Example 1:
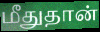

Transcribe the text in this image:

மீதுதான்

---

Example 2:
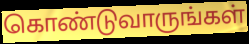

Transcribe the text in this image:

கொண்டுவாருங்கள்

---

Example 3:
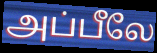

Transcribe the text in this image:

அப்பீலே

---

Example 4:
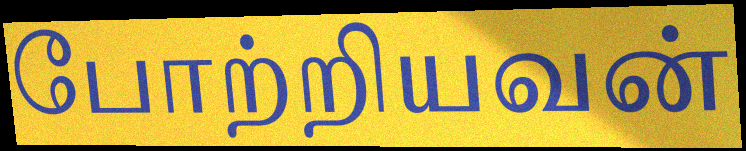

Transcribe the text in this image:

போற்றியவன்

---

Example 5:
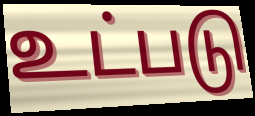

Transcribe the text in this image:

உட்படு